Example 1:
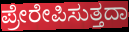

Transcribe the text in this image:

ಪ್ರೇರೇಪಿಸುತ್ತದಾ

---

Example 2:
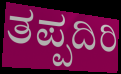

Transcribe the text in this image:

ತಪ್ಪದಿರಿ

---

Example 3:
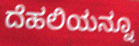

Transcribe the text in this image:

ದೆಹಲಿಯನ್ನೂ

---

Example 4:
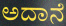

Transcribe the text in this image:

ಅದಾನೆ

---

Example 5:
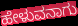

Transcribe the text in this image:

ಹೇಳುವನಾಗು